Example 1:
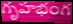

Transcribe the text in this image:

గృహభంగ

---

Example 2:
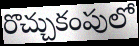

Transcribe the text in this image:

రొచ్చుకంపులో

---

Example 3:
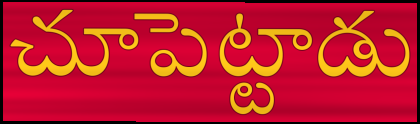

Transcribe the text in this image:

చూపెట్టాడు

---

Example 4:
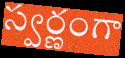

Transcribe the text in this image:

స్వర్ణంగా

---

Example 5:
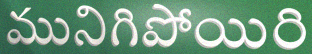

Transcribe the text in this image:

మునిగిపోయిరి